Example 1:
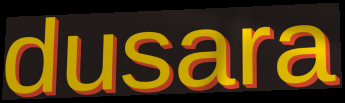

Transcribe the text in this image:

dusara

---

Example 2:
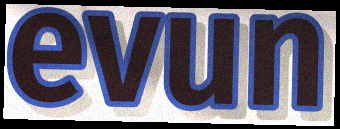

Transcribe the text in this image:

evun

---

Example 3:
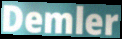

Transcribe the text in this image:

Demler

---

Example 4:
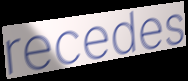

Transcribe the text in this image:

recedes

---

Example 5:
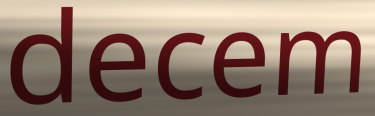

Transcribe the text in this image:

decem